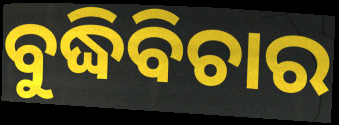
ବୁଦ୍ଧିବିଚାର